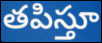
తపిస్తూ